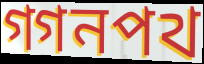
গগনপথ